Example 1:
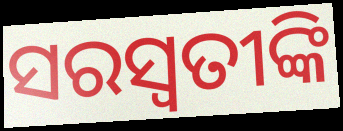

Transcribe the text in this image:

ସରସ୍ୱତୀଙ୍କି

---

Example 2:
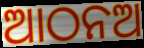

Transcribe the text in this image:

ଆଠନଅ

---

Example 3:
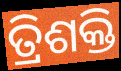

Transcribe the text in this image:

ତ୍ରିଶକ୍ତି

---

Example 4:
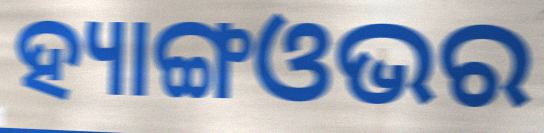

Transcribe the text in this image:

ହ୍ୟାଙ୍ଗଓଭର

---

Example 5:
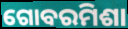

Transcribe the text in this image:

ଗୋବରମିଶା